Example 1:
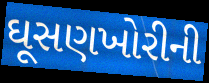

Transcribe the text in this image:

ઘૂસણખોરીની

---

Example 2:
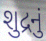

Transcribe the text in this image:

શુદ્રનું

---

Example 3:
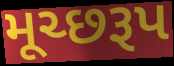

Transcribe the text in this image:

મૂચ્છરૂપ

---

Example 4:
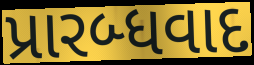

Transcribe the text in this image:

પ્રારબ્ધવાદ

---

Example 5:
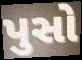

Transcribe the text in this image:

પુસો